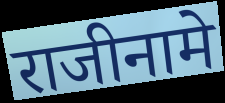
राजीनामे